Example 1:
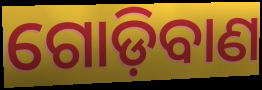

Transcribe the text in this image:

ଗୋଡ଼ିବାଣ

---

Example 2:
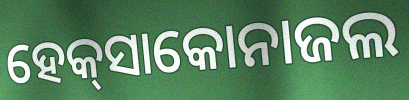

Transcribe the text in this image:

ହେକ୍‌ସାକୋନାଜଲ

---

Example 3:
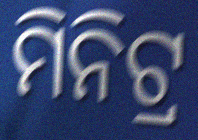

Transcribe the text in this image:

ମିନିଟ୍ର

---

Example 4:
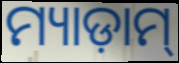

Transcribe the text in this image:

ମ୍ୟାଡ଼ାମ୍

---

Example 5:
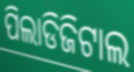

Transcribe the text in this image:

ପିଲାଡିଜିଟାଲ